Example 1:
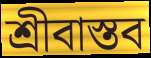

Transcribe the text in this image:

শ্রীবাস্তব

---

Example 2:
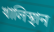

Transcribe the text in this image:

খালিস্থান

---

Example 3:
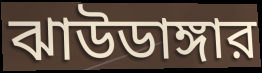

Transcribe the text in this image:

ঝাউডাঙ্গার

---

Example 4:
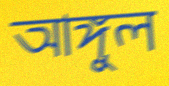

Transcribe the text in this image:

আঙ্গুল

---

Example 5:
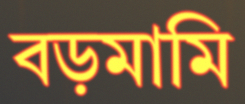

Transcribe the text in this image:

বড়মামি